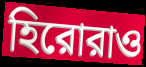
হিরোরাও